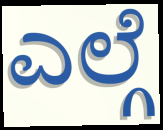
ಎಲ್ಗೆ